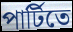
পার্টিতে